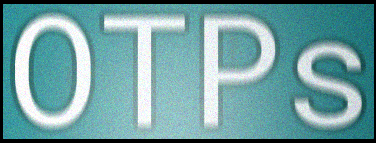
OTPs